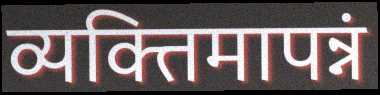
व्यक्तिमापन्नं